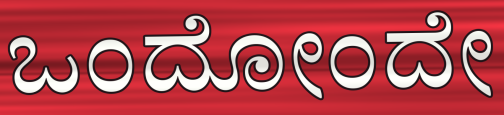
ಒಂದೋಂದೇ